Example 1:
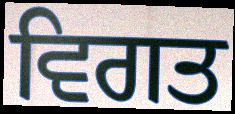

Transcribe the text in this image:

ਵਿਗਤ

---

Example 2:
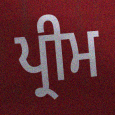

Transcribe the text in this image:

ਪ੍ਰੀਮ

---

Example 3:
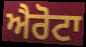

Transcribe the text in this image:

ਐਰੋਟਾ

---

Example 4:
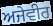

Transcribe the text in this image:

ਅਜੇਵੀਰ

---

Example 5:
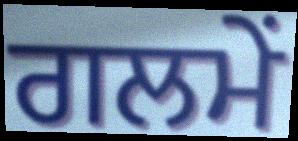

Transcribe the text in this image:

ਗਲਮੇਂ